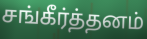
சங்கீர்த்தனம்